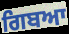
ਗਿਬਆ